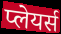
प्लेयर्स